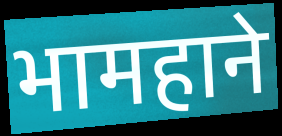
भामहाने